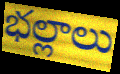
భల్లాలు